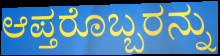
ಆಪ್ತರೊಬ್ಬರನ್ನು